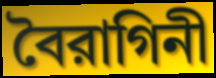
বৈরাগিনী